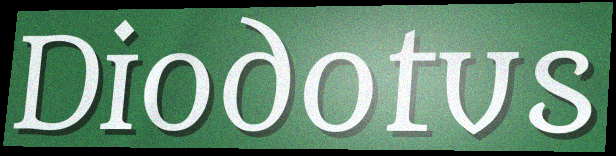
Diodotus